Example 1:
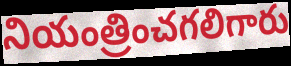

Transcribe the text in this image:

నియంత్రించగలిగారు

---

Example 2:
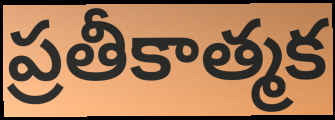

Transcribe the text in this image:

ప్రతీకాత్మక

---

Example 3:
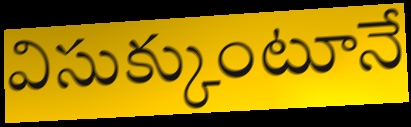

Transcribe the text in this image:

విసుక్కుంటూనే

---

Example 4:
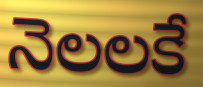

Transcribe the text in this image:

నెలలకే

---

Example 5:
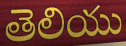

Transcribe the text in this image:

తెలియు